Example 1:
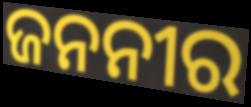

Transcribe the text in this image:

ଜନନୀର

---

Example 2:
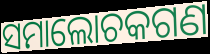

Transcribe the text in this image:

ସମାଲୋଚକଗଣ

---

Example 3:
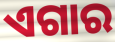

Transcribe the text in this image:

ଏଗାର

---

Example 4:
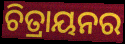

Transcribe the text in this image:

ଚିତ୍ରାୟନର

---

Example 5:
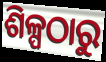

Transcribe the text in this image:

ଶିଳ୍ପଠାରୁ